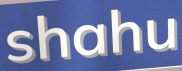
shahu